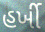
હર્ખી